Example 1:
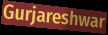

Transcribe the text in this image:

Gurjareshwar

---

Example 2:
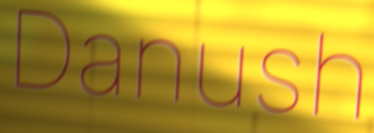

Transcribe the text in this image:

Danush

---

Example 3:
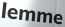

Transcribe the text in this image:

lemme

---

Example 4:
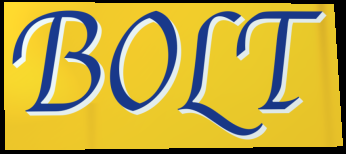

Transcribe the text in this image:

BOLT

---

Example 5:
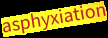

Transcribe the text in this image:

asphyxiation